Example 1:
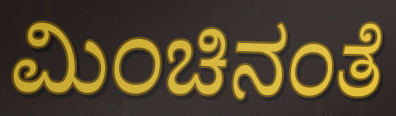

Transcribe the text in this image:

ಮಿಂಚಿನಂತೆ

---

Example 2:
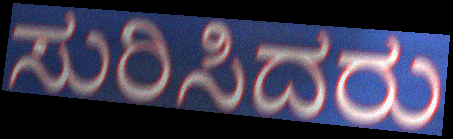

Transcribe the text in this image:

ಸುರಿಸಿದರು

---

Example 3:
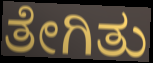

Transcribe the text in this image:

ತೇಗಿತು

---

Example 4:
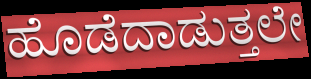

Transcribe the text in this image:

ಹೊಡೆದಾಡುತ್ತಲೇ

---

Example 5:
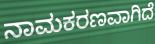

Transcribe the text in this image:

ನಾಮಕರಣವಾಗಿದೆ